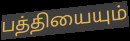
பத்தியையும்